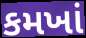
કમખાં